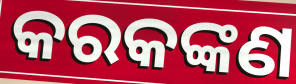
କରକଙ୍କଣ